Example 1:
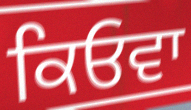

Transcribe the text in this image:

ਕਿਓਵਾ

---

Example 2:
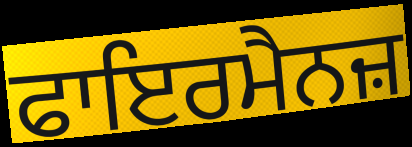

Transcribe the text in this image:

ਫਾਇਰਮੈਨਜ਼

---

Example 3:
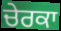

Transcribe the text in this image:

ਚੇਰਕਾ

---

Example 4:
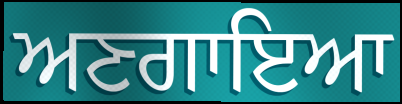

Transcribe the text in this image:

ਅਣਗਾਇਆ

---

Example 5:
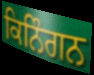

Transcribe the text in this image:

ਕਿਨਿੰਗਨ